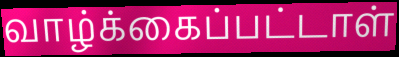
வாழ்க்கைப்பட்டாள்